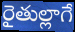
రైతుల్లాగే